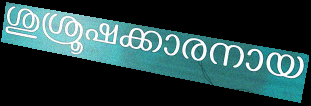
ശുശ്രൂഷക്കാരനായ